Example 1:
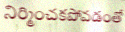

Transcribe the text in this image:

నిర్మించకపోవడంతో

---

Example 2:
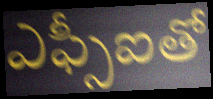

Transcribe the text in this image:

ఎఫ్సీఐతో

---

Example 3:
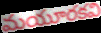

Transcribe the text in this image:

మయూరకవి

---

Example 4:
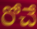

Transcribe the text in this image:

రోచే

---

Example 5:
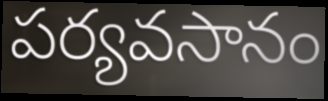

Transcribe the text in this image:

పర్యవసానం